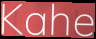
Kahe